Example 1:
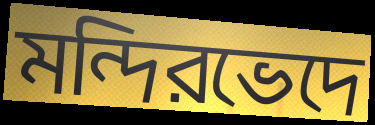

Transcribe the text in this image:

মন্দিরভেদে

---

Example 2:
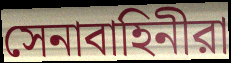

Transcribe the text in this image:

সেনাবাহিনীরা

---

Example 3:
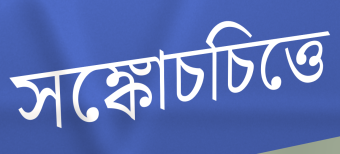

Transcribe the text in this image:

সঙ্কোচচিত্তে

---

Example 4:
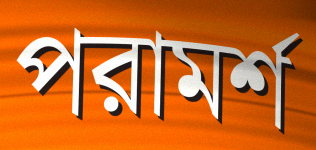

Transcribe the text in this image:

পরামর্শ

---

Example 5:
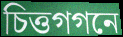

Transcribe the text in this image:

চিত্তগগনে